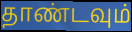
தாண்டவும்